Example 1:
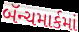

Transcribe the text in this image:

બૅન્ચમાર્કમાં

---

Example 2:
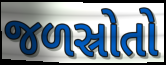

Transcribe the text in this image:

જળસ્રોતો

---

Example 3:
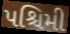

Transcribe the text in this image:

પશ્ચિમી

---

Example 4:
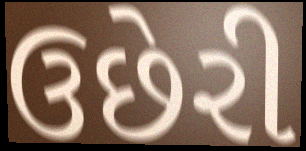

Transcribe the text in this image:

ઉછેરી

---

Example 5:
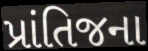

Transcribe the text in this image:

પ્રાંતિજના